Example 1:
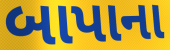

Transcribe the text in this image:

બાપાના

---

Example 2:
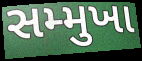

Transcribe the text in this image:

સમ્મુખા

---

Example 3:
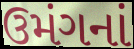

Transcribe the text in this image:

ઉમંગનાં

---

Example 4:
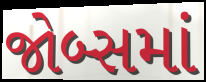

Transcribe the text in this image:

જોબ્સમાં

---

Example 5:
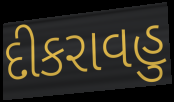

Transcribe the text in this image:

દીકરાવહુ